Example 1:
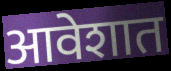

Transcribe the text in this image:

आवेशात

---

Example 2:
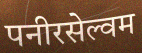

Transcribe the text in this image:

पनीरसेल्वम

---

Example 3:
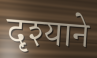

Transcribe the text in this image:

दृश्याने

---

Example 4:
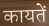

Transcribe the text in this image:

कायतें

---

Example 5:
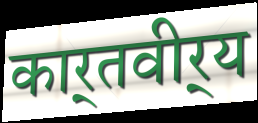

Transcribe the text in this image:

कार्तवीर्य